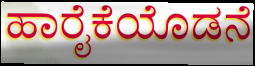
ಹಾರೈಕೆಯೊಡನೆ